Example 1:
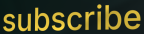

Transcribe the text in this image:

subscribe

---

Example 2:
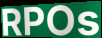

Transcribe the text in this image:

RPOs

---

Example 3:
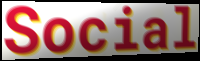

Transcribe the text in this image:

Social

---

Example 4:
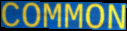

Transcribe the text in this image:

COMMON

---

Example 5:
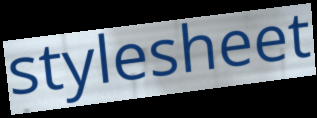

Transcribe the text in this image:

stylesheet